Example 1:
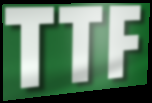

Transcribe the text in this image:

TTF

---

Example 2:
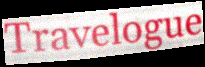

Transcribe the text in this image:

Travelogue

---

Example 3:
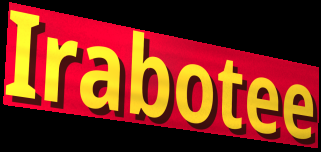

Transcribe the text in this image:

Irabotee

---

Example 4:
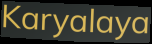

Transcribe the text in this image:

Karyalaya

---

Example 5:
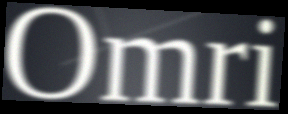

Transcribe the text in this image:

Omri